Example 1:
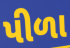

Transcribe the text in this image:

પીળા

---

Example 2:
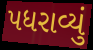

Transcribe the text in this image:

પધરાવ્યું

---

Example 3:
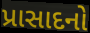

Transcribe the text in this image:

પ્રાસાદનો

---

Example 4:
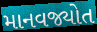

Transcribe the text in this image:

માનવજ્યોત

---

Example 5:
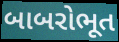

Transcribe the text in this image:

બાબરોભૂત